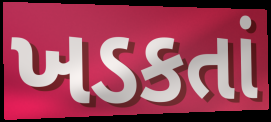
ખડકતાં